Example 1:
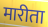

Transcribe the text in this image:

मारीता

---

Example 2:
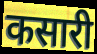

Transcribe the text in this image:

कसारी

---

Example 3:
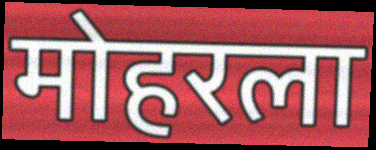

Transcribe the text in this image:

मोहरला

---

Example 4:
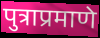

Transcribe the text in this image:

पुत्राप्रमाणे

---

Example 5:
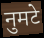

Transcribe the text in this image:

नुमटे